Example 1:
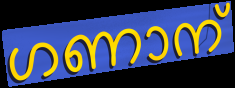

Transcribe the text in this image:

ഗണാന്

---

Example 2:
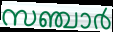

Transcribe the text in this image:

സഞ്ചാർ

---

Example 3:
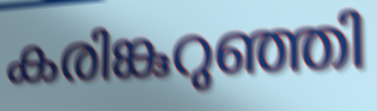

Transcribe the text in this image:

കരിങ്കുറുഞ്ഞി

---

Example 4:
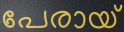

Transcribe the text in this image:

പേരായ്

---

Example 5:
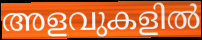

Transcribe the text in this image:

അളവുകളിൽ